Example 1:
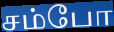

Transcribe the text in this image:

சம்போ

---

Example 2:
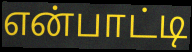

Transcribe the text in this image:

என்பாட்டி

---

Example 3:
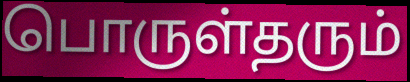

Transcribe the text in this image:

பொருள்தரும்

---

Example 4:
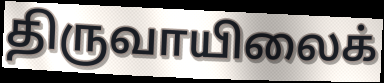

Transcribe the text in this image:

திருவாயிலைக்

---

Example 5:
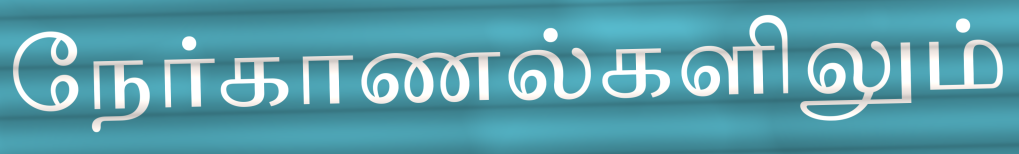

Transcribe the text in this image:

நேர்காணல்களிலும்